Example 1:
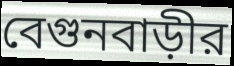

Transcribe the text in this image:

বেগুনবাড়ীর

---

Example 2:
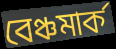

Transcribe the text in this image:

বেঞ্চমার্ক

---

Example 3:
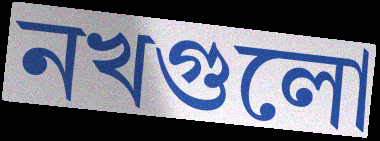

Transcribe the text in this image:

নখগুলো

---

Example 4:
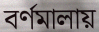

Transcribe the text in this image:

বর্ণমালায়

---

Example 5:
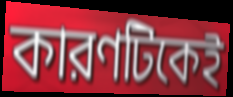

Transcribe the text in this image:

কারণটিকেই